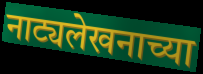
नाट्यलेखनाच्या